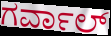
ಗರ್ವಾಲ್